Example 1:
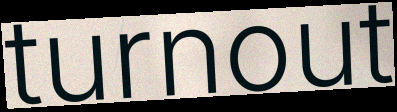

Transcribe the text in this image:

turnout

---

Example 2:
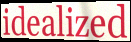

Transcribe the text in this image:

idealized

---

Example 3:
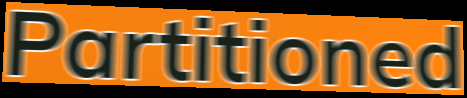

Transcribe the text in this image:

Partitioned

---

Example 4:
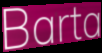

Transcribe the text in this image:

Barta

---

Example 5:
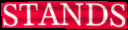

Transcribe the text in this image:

STANDS